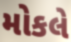
મોકલે